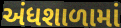
અંધશાળામાં